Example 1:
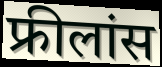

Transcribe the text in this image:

फ्रीलांस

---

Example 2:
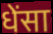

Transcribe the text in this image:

धेंसा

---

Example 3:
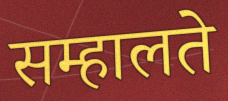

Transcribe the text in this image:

सम्हालते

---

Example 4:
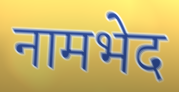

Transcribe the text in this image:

नामभेद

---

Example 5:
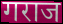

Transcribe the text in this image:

गराज